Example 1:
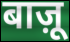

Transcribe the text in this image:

बाज़ू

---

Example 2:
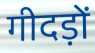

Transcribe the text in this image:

गीदड़ों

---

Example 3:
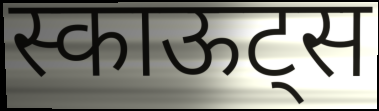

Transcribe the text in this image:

स्काऊट्स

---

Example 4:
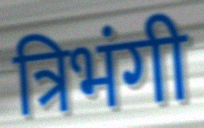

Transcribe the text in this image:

त्रिभंगी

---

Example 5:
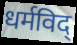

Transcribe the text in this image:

धर्मविद्